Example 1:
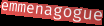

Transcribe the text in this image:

emmenagogue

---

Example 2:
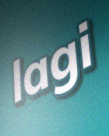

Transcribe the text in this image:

lagi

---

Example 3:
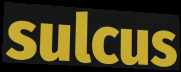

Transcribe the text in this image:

sulcus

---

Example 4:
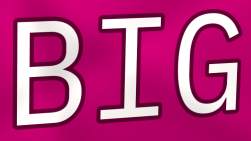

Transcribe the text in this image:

BIG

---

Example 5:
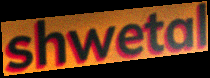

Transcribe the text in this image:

shwetal